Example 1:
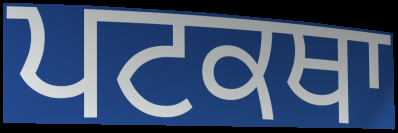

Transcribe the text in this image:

ਪਟਕਥਾ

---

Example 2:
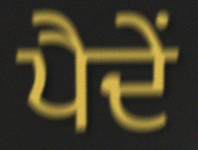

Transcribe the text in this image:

ਪੈਦੇਂ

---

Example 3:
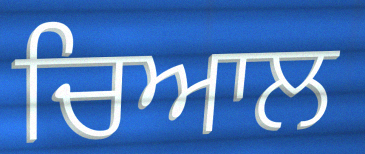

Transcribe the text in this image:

ਚਿਆਲ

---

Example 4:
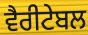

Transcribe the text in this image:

ਵੈਰੀਟੇਬਲ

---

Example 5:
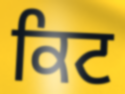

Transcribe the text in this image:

ਕਿਟ